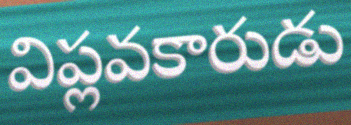
విప్లవకారుడు